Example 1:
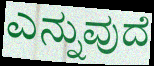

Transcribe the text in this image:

ಎನ್ನುವುದೆ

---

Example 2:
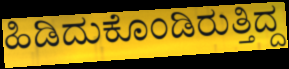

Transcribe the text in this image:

ಹಿಡಿದುಕೊಂಡಿರುತ್ತಿದ್ದ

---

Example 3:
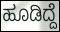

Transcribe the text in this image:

ಹೂಡಿದ್ದೆ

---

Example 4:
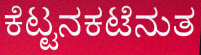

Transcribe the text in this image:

ಕೆಟ್ಟನಕಟೆನುತ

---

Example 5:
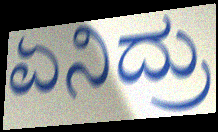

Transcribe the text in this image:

ಏನಿದ್ರು